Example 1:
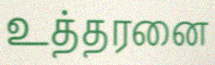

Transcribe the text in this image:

உத்தரனை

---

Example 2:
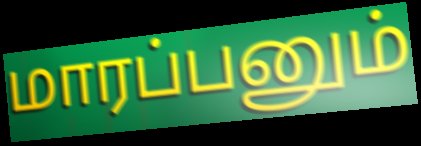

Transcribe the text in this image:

மாரப்பனும்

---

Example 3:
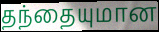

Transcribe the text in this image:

தந்தையுமான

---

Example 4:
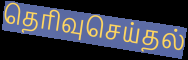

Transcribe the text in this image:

தெரிவுசெய்தல்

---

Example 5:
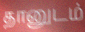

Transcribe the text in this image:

தானுடம்